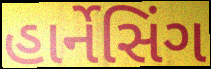
હાર્નેસિંગ